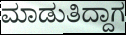
ಮಾಡುತಿದ್ದಾಗ